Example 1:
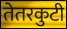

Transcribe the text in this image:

तेतरकुटी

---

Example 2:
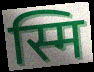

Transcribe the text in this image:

स्मि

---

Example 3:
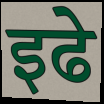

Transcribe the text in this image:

इढे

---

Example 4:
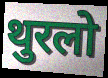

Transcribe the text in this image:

थुरलो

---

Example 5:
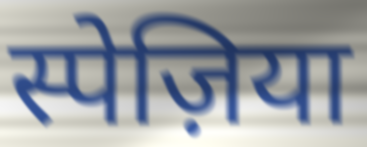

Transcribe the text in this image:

स्पेज़िया